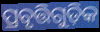
ପ୍ରବୃତ୍ତିଗୁଡ଼ିକ